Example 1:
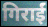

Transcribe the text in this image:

गिराईं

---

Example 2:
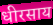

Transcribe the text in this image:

धीरसाय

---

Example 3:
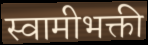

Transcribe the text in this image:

स्वामीभक्ती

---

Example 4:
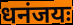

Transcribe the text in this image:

धनंजयः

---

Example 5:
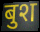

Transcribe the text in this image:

बुश